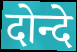
दोन्दे